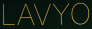
LAVYO